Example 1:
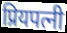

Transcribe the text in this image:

प्रियपत्नी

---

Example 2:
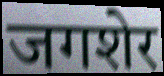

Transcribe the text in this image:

जगशेर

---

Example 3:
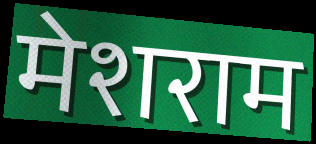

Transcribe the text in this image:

मेशराम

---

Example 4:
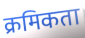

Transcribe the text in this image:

क्रमिकता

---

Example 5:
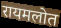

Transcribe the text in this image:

रायमलोत